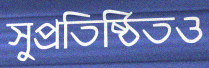
সুপ্রতিষ্ঠিতও